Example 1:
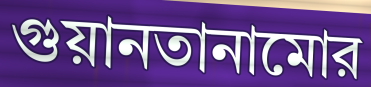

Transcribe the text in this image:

গুয়ানতানামোর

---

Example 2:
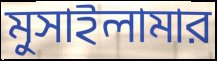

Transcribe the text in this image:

মুসাইলামার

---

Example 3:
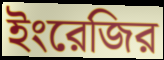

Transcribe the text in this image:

ইংরেজির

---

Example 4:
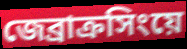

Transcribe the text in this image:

জেব্রাক্রসিংয়ে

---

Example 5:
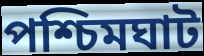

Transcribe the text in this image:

পশ্চিমঘাট